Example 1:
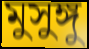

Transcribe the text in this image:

মুসুঙ্গু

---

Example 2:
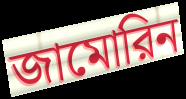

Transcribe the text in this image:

জামোরিন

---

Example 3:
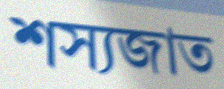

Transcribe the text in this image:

শস্যজাত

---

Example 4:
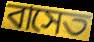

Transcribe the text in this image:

বাসেত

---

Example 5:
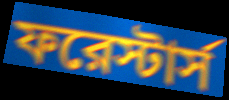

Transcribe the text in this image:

ফরেস্টার্স